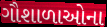
ગૌશાળાઓના